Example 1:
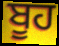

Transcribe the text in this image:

ਬੂਹ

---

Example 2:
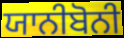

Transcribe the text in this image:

ਯਾਨੀਬੋਨੀ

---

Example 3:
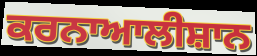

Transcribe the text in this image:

ਕਰਨਾਆਲੀਸ਼ਾਨ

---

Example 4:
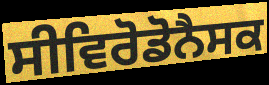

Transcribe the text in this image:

ਸੀਵਿਰੋਡੋਨੈਸਕ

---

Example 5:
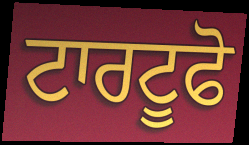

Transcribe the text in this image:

ਟਾਰਟੂਫੋ